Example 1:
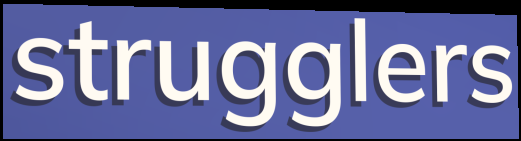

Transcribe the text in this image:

strugglers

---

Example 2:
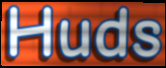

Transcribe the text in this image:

Huds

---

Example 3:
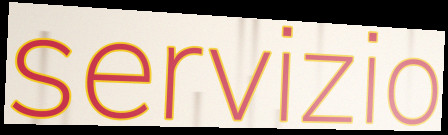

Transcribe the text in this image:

servizio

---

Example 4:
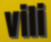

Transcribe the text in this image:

vili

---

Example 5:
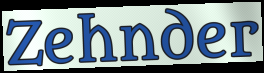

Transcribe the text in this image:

Zehnder